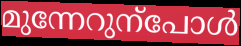
മുന്നേറുന്പോൾ